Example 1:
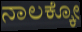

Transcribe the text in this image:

ನಾಲಕ್ಕೋ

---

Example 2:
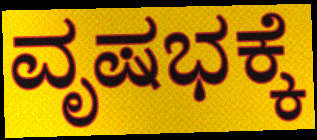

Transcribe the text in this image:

ವೃಷಭಕ್ಕೆ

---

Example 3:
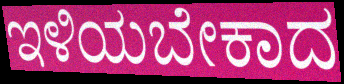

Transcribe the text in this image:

ಇಳಿಯಬೇಕಾದ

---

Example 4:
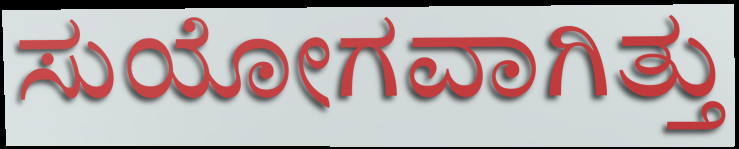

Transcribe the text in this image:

ಸುಯೋಗವಾಗಿತ್ತು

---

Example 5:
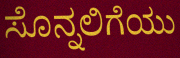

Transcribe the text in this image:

ಸೊನ್ನಲಿಗೆಯು